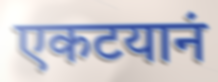
एकटयानं